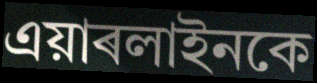
এয়াৰলাইনকে